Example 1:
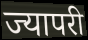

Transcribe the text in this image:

ज्यापरी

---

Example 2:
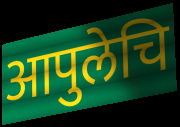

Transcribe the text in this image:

आपुलेचि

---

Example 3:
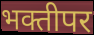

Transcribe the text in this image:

भक्तीपर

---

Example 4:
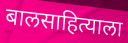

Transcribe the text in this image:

बालसाहित्याला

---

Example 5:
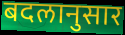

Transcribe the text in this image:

बदलानुसार